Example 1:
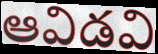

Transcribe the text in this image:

ఆవిడవి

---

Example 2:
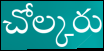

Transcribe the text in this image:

చోల్కరు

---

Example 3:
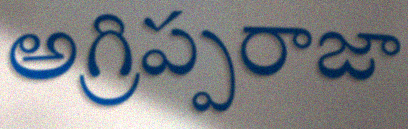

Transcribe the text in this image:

అగ్రిప్పరాజా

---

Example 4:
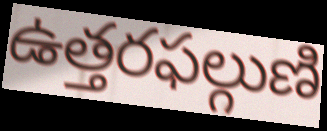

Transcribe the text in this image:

ఉత్తరఫల్గుణి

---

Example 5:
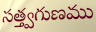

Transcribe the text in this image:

సత్త్వగుణము